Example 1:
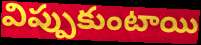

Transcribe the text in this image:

విప్పుకుంటాయి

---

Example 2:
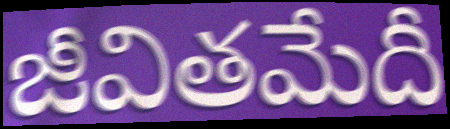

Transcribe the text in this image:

జీవితమేదీ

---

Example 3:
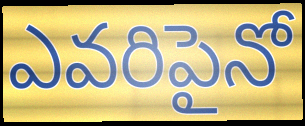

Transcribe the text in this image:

ఎవరిపైనో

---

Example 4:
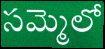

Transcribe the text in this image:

సమ్మెలో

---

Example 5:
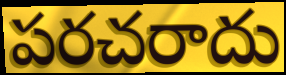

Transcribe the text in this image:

పరచరాదు